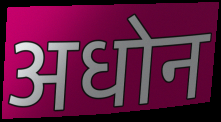
अधोन